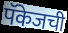
पॅकेजची